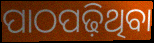
ପାଠପଢ଼ିଥିବା